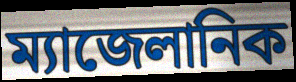
ম্যাজেলানিক